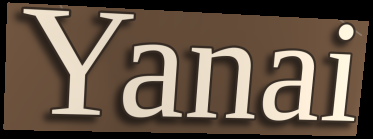
Yanai